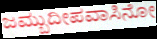
ಜಮ್ಬುದೀಪವಾಸಿನೋ